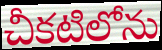
చీకటిలోను